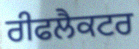
ਰੀਫਲੈਕਟਰ